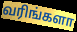
வரிங்களா